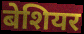
बेशियर